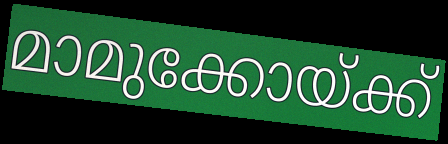
മാമുക്കോയ്ക്ക്